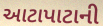
આટાપાટાની